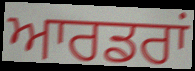
ਆਰਡਰਾਂ